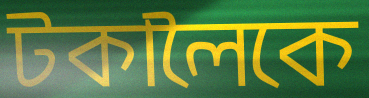
টকালৈকে